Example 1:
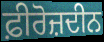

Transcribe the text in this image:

ਫ਼ੀਰੋਜ਼ਦੀਨ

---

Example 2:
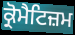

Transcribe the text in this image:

ਕ੍ਰੋਮੈਟਿਜ਼ਮ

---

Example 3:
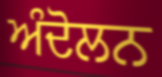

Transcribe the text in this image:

ਅੰਦੋਲਨ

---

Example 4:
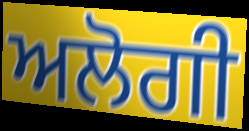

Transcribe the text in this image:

ਅਲੋਗੀ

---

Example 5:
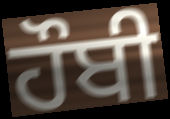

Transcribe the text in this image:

ਹੌਬੀ